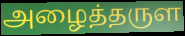
அழைத்தருள